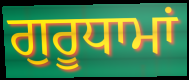
ਗੁਰੂਧਾਮਾਂ